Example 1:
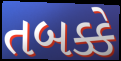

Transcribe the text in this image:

તબક્કે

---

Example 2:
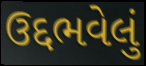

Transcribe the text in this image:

ઉદ્દભવેલું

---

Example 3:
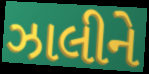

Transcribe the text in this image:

ઝાલીને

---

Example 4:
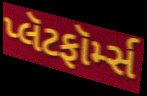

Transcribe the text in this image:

પ્લૅટફૉર્મ્સ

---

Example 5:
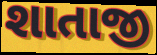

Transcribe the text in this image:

શાતાજી